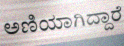
ಅಣಿಯಾಗಿದ್ದಾರೆ